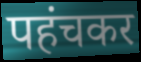
पहंचकर